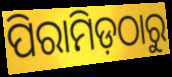
ପିରାମିଡ଼ଠାରୁ